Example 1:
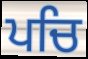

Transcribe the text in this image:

ਪਚਿ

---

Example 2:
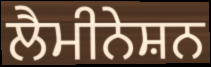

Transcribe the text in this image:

ਲੈਮੀਨੇਸ਼ਨ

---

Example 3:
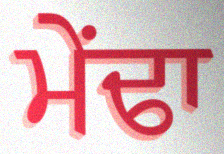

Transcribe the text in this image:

ਮੇਂਢਾ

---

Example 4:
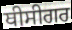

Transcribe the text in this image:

ਥੀਸੀਗਰ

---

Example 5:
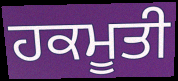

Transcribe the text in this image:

ਹਕਮੂਤੀ